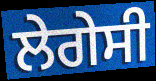
ਲੇਗੇਸੀ